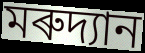
মৰুদ্যান